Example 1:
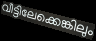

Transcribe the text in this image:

വീട്ടിലേക്കെങ്കിലും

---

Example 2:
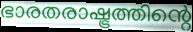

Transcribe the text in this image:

ഭാരതരാഷ്ട്രത്തിന്റെ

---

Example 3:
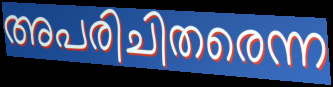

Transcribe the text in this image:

അപരിചിതരെന്ന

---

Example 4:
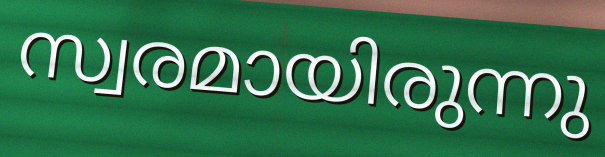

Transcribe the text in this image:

സ്വരമായിരുന്നു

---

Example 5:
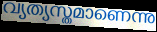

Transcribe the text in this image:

വ്യത്യസ്തമാണെന്നു